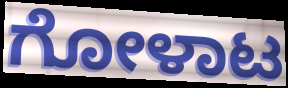
ಗೋಳಾಟ